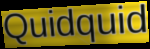
Quidquid